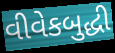
વીવેકબુદ્ધી